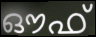
ഔഫ്